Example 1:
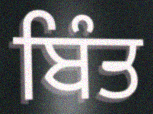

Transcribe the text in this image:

ਬਿੰਤ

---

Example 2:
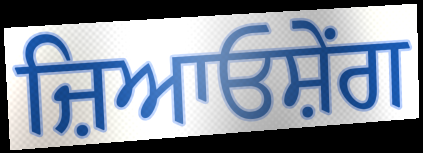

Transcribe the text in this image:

ਜ਼ਿਆਓਸ਼ੇਂਗ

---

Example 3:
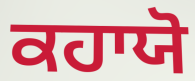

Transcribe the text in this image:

ਕਹਾਯੋ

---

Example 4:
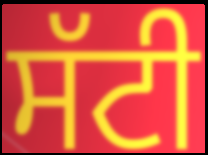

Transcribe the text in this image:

ਸੱਟੀ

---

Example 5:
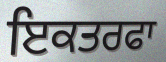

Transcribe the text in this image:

ਇਕਤਰਫਾ